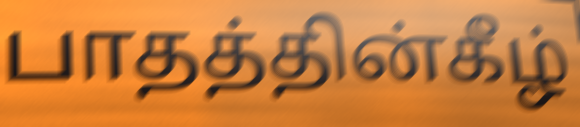
பாதத்தின்கீழ்